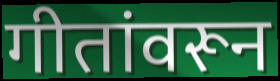
गीतांवरून